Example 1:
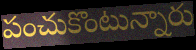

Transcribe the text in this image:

పంచుకొంటున్నారు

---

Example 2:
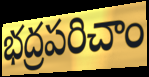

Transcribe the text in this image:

భద్రపరిచాం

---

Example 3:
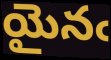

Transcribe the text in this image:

యైనఁ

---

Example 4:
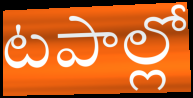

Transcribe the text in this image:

టపాల్లో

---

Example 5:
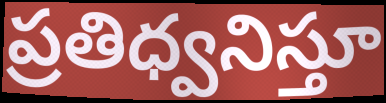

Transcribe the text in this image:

ప్రతిధ్వనిస్తూ